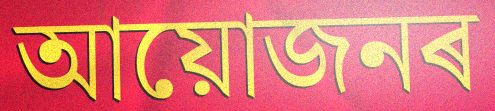
আয়োজনৰ